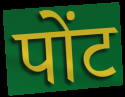
पोंट